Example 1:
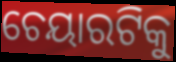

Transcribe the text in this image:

ଚେୟାରଟିକୁ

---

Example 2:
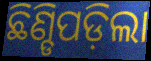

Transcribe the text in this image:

ଛିଣ୍ଡିପଡ଼ିଲା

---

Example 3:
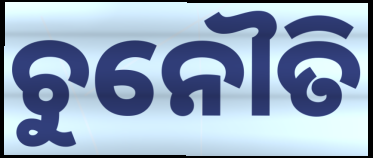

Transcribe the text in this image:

ଚୁନୌତି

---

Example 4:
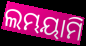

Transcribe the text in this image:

ଲମ୍ଭୟାମି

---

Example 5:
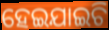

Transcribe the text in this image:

ହେଇଯାଇଚି